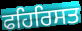
ਫਹਿਰਿਸਤ